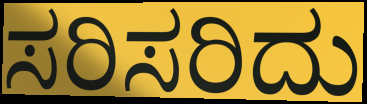
ಸರಿಸರಿದು